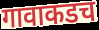
गावाकडच